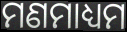
ମଣମାଧ୍ୟମ